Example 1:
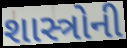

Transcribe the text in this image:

શાસ્ત્રોની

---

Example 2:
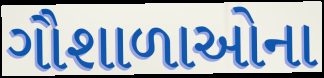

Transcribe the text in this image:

ગૌશાળાઓના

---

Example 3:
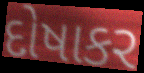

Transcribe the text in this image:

દોષાકર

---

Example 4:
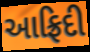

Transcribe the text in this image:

આફ્રિદી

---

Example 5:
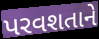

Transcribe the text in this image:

પરવશતાને